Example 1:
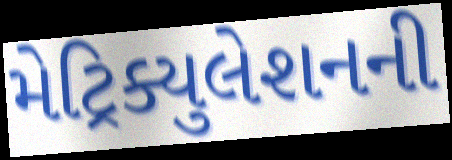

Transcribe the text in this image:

મેટ્રિક્યુલેશનની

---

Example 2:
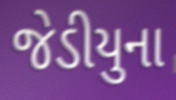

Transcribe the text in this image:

જેડીયુના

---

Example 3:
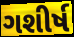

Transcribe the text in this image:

ગશીર્ષ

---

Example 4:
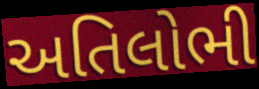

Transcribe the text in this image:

અતિલોભી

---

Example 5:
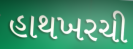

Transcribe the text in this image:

હાથખરચી